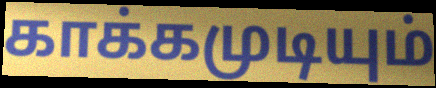
காக்கமுடியும்